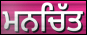
ਮਨਚਿੱਤ